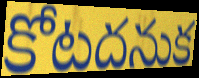
కోటదనుక